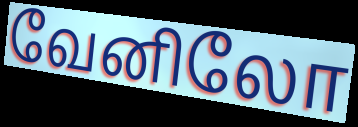
வேனிலோ